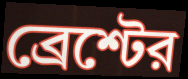
ব্রেশ্টের